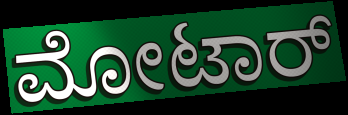
ಮೋಟಾರ್